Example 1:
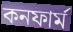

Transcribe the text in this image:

কনফাৰ্ম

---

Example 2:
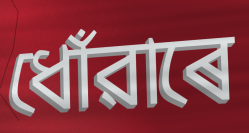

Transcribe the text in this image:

ধোঁৱাৰে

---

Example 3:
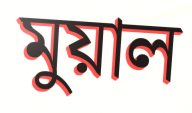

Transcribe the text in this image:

মুয়াল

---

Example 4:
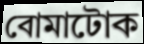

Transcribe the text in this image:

বোমাটোক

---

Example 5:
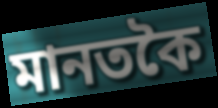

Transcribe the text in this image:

মানতকৈ